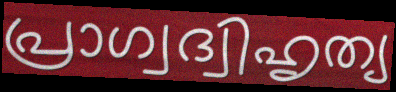
പ്രാഗ്വദ്വിഹൃത്യ